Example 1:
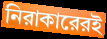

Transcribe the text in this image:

নিরাকারেরই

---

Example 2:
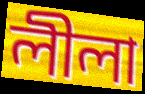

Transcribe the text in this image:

লীলা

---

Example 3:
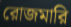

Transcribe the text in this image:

রোজমারি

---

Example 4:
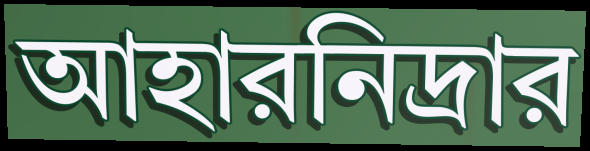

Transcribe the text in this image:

আহারনিদ্রার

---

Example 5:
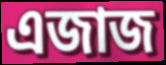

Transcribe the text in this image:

এজাজ